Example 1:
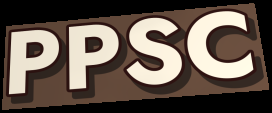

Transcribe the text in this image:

PPSC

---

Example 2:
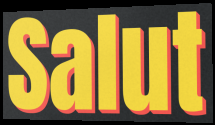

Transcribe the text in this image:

Salut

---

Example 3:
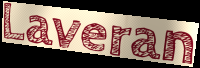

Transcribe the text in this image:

Laveran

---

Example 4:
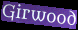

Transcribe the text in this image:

Girwood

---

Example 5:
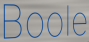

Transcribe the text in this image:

Boole